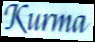
Kurma